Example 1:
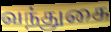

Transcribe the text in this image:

வந்துகை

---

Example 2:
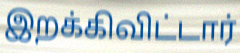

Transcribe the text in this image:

இறக்கிவிட்டார்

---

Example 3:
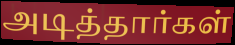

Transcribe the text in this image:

அடித்தார்கள்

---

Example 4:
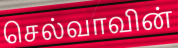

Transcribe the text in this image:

செல்வாவின்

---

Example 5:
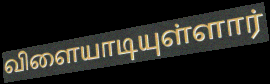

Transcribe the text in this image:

விளையாடியுள்ளார்